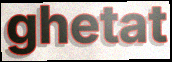
ghetat